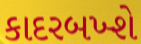
કાદરબખ્શે